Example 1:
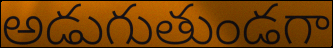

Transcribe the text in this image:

అడుగుతుండగా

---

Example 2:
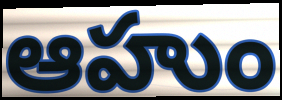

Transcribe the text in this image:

ఆహుం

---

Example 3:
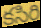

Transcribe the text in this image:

కసిరి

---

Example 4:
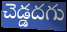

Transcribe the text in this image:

చెడ్డదగు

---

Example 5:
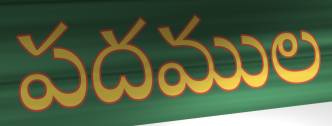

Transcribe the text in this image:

పదముల